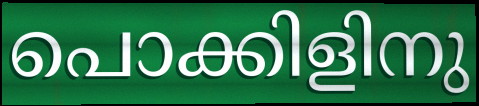
പൊക്കിളിനു